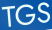
TGS